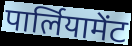
पार्लियामेंट